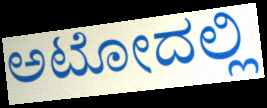
ಅಟೋದಲ್ಲಿ